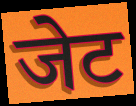
जेट